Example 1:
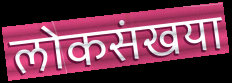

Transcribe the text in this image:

लोकसंखया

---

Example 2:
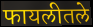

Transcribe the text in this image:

फायलीतले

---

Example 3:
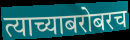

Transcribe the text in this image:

त्याच्याबरोबरच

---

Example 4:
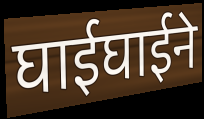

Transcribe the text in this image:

घाईघाईने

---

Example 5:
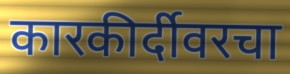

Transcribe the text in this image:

कारकीर्दीवरचा